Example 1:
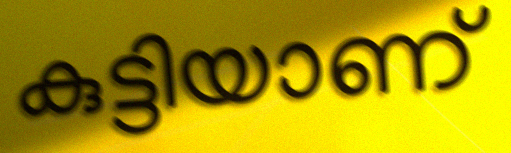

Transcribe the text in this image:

കുട്ടിയാണ്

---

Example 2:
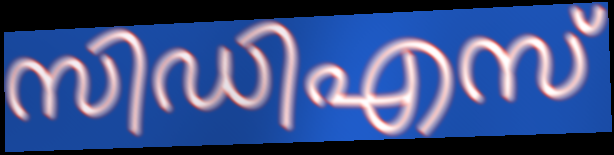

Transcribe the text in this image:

സിഡിഎസ്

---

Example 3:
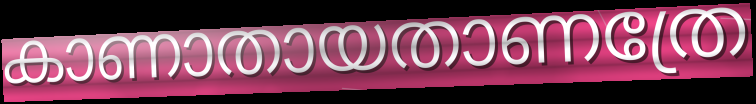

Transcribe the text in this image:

കാണാതായതാണത്രേ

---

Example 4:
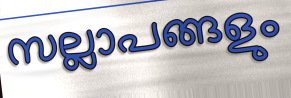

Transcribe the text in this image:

സല്ലാപങ്ങളും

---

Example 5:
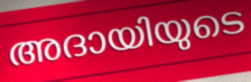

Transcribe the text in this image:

അദായിയുടെ